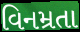
વિનમ્રતા